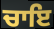
ਚਾਇ